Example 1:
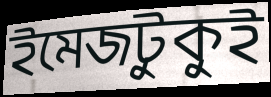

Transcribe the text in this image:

ইমেজটুকুই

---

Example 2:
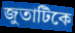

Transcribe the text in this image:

জুতাটিকে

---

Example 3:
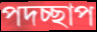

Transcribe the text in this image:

পদচ্ছাপ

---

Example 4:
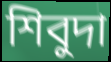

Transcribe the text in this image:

শিবুদা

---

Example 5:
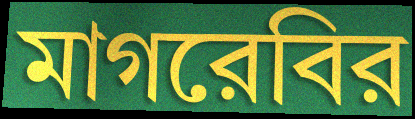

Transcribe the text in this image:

মাগরেবির